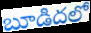
బూడిదలో